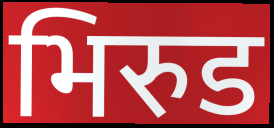
भिरुड